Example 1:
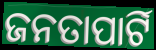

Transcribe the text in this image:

ଜନତାପାର୍ଟି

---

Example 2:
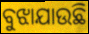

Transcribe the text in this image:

ବୁଝାଯାଉଛି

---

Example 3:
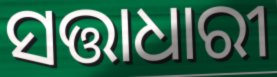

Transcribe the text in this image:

ସତ୍ତାଧାରୀ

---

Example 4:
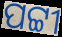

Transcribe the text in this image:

ପଟ୍ଟୀ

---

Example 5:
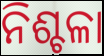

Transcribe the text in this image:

ନିଶ୍ଚଳା